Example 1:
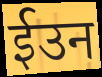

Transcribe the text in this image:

ईउन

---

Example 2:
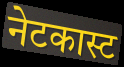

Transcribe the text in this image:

नेटकास्ट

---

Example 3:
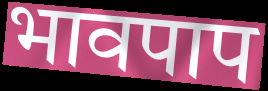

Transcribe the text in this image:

भावपाप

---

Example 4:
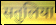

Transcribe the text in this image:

सतुलिया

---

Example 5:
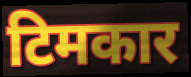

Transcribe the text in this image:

टिमकार